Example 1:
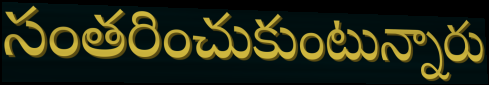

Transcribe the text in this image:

సంతరించుకుంటున్నారు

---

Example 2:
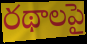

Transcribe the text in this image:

రథాలపై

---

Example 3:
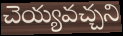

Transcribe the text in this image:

చెయ్యవచ్చని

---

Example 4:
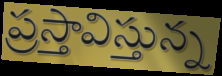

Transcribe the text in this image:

ప్రస్తావిస్తున్న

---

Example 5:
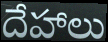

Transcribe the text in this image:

దేహాలు